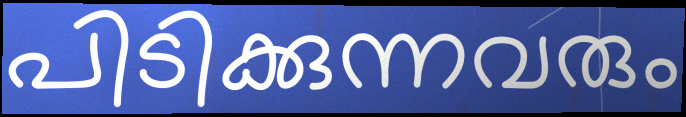
പിടിക്കുന്നവരും